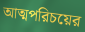
আত্মপরিচয়ের